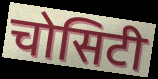
चोसिटी